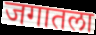
जगातला